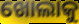
ଖୋଲାକୁ